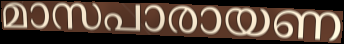
മാസപാരായണ